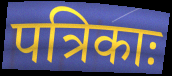
पत्रिकाः